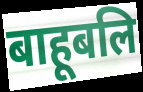
बाहूबलि